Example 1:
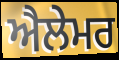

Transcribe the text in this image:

ਐਲੇਮਰ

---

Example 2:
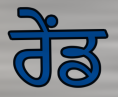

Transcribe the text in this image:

ਰੇਂਡ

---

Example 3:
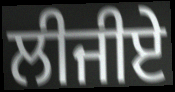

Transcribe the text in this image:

ਲੀਜੀਏ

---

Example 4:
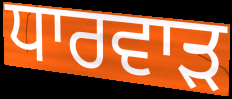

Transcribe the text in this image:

ਧਾਰਵਾੜ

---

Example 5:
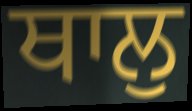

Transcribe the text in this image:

ਥਾਲੁ